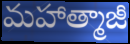
మహాత్మాజీ